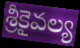
శ్రీకైవల్య